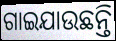
ଗାଇଯାଉଛନ୍ତି